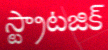
స్ట్రాటజిక్